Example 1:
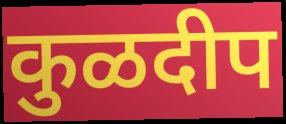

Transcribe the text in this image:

कुळदीप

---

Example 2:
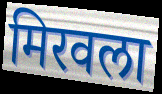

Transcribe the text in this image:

मिरवला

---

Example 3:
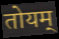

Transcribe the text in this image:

तोयम्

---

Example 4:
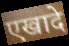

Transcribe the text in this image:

एखादे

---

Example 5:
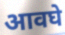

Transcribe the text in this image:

आवघे